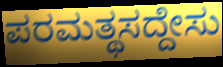
ಪರಮತ್ಥಸದ್ದೇಸು